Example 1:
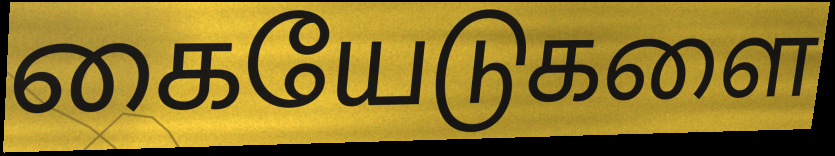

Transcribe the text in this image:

கையேடுகளை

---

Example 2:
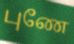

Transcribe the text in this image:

புணே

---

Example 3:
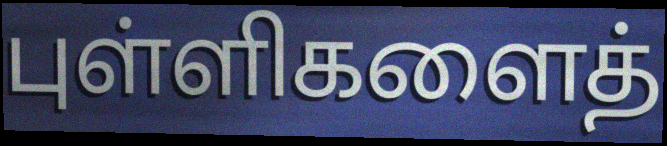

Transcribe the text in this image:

புள்ளிகளைத்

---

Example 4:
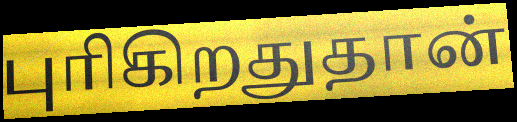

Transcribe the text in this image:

புரிகிறதுதான்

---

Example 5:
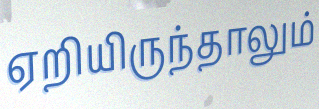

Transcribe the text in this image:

ஏறியிருந்தாலும்